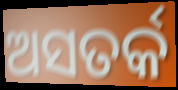
ଅସତର୍କ